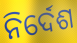
ନିର୍ଦେଶ